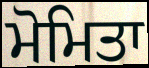
ਮੋਮਿਤਾ